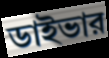
ডাইভার